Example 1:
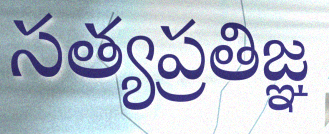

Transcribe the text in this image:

సత్యప్రతిజ్ఞ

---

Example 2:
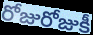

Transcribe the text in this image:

రోజురోజుకీ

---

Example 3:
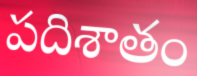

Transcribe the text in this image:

పదిశాతం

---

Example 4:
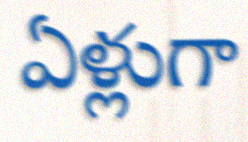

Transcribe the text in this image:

ఏళ్లుగా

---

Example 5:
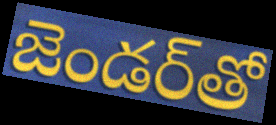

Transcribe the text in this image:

జెండర్‌తో